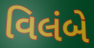
વિલંબે